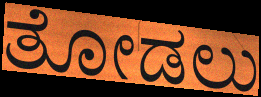
ತೋಡಲು